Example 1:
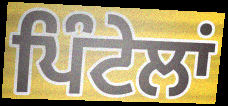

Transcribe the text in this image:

ਪਿੰਟੇਲਾਂ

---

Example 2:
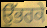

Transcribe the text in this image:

ਉੱਭਰਕੇ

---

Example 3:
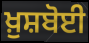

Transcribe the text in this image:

ਖ਼ੁਸ਼ਬੋਈ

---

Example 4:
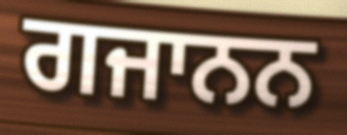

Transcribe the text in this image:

ਗਜਾਨਨ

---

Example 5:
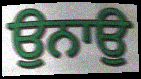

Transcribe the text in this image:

ਉਨਾਉ